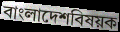
বাংলাদেশবিষয়ক